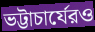
ভট্টাচার্যেরও